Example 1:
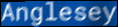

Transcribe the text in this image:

Anglesey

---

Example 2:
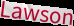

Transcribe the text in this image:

Lawson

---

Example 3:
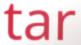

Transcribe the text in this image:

tar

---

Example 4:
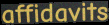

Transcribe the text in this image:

affidavits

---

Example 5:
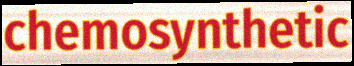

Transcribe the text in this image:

chemosynthetic